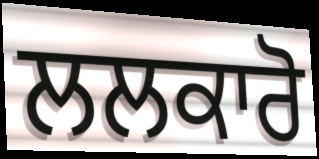
ਲਲਕਾਰੋ